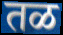
तळ